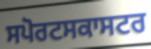
ਸਪੋਰਟਸਕਾਸਟਰ